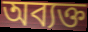
অব্যক্ত